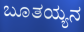
ಬೂತಯ್ಯನ